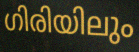
ഗിരിയിലും